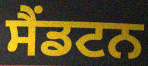
ਸੈਂਡਟਨ